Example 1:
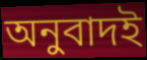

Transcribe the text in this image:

অনুবাদই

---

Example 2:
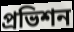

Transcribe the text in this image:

প্রভিশন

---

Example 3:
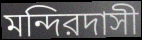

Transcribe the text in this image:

মন্দিরদাসী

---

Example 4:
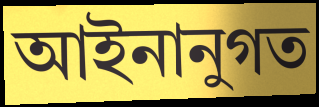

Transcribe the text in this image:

আইনানুগত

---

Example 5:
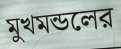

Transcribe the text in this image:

মুখমন্ডলের